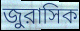
জুরাসিক